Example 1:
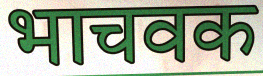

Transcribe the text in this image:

भाचवक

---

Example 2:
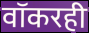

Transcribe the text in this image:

वॉकरही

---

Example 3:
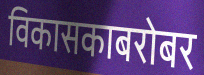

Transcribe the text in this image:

विकासकाबरोबर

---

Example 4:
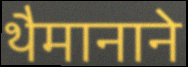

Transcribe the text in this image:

थैमानाने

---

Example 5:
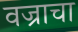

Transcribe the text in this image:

वज्राचा